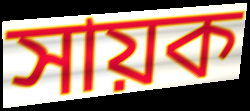
সায়ক